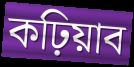
কঢ়িয়াব